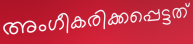
അംഗീകരിക്കപ്പെട്ടത്